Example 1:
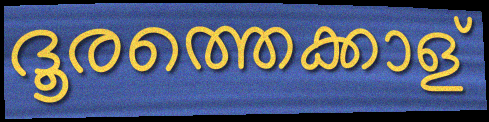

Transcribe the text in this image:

ദൂരത്തെക്കാള്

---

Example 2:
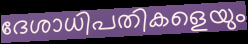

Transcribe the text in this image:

ദേശാധിപതികളെയും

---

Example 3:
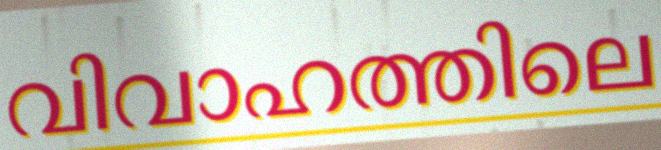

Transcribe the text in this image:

വിവാഹത്തിലെ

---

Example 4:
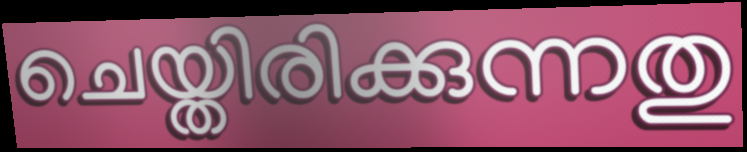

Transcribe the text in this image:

ചെയ്തിരിക്കുന്നതു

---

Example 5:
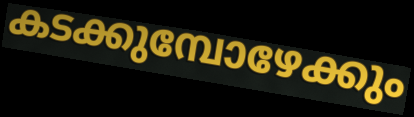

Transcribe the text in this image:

കടക്കുമ്പോഴേക്കും